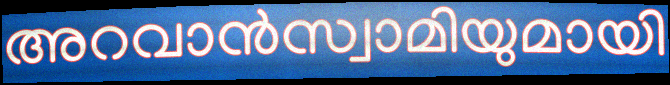
അറവാൻസ്വാമിയുമായി